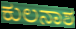
ಕುಲನಾಶ